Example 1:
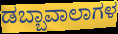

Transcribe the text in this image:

ಡಬ್ಬಾವಾಲಾಗಳ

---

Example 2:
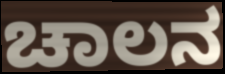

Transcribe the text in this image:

ಚಾಲನ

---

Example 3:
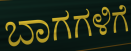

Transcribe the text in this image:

ಬಾಗಗಳಿಗೆ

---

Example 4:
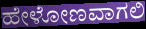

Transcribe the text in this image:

ಹೇಳೋಣವಾಗಲಿ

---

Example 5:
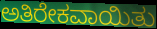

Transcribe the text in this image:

ಅತಿರೇಕವಾಯಿತು